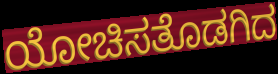
ಯೋಚಿಸತೊಡಗಿದ